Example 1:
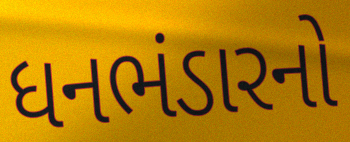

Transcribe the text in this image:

ધનભંડારનો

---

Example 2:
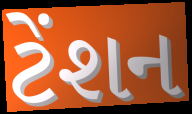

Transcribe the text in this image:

ટેંશન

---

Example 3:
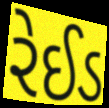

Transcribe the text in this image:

રેઈડ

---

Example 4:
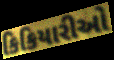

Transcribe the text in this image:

કિકિયારીઓ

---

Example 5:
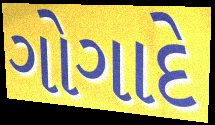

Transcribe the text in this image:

ગોગાદે